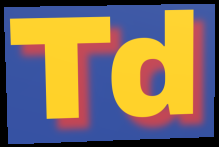
Td